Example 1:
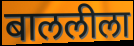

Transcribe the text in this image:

बाललीला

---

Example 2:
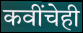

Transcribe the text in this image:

कवींचेही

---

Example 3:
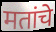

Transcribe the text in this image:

मतांचे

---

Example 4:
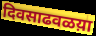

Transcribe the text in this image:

दिवसाढवळय़ा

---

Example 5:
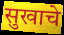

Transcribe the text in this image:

सुखाचे